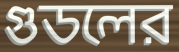
গুডলের